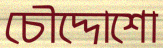
চৌদ্দোশো